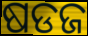
ଷଡଜ